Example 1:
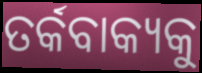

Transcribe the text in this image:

ତର୍କବାକ୍ୟକୁ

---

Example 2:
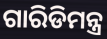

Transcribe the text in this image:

ଗାରିଡିମନ୍ତ୍ର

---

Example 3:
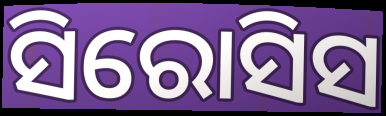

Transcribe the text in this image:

ସିରୋସିସ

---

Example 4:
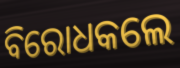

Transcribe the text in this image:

ବିରୋଧକଲେ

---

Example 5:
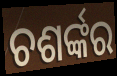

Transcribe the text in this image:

ଚଶର୍ଙ୍କର